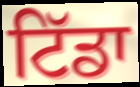
ਟਿੱਡਾ